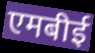
एमबीई